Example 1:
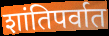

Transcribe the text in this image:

शांतिपर्वात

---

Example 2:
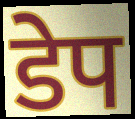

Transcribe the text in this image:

डेप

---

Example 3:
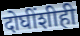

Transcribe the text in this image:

दोघींशीही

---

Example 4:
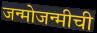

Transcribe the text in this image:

जन्मोजन्मीची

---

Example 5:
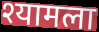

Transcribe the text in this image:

श्यामला